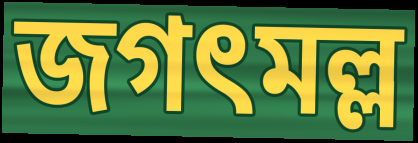
জগৎমল্ল